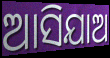
ଆସିଯାଅ